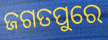
ଜଗତପୁରେ